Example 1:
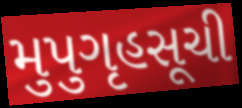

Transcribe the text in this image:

મુપુગૃહસૂચી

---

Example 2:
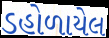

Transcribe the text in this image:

ડહોળાયેલ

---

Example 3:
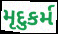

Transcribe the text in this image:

મૃદુકર્મ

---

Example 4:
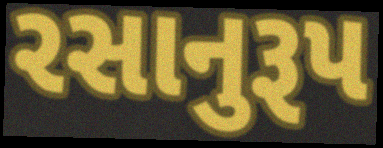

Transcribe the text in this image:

રસાનુરૂપ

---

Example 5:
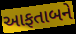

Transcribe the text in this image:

આફતાબને